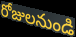
రోజులనుండి